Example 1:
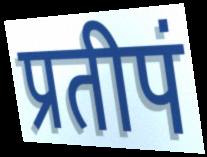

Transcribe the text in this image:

प्रतीपं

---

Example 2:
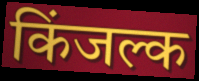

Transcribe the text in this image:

किंजल्क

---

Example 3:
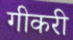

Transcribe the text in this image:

गीकरी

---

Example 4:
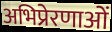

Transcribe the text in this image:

अभिप्रेरणाओं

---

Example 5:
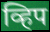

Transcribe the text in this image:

व्हिप